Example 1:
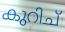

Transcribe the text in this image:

കുറിച്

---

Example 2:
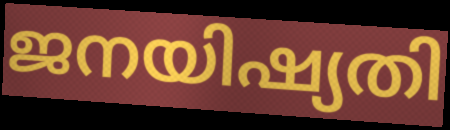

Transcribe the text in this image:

ജനയിഷ്യതി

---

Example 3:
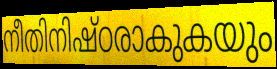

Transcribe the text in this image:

നീതിനിഷ്ഠരാകുകയും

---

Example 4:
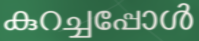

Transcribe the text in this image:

കുറച്ചപ്പോൾ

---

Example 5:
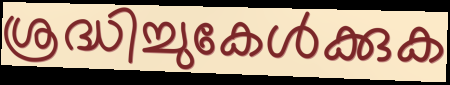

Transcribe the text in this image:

ശ്രദ്ധിച്ചുകേൾക്കുക